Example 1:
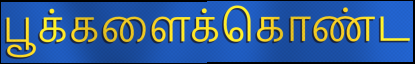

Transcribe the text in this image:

பூக்களைக்கொண்ட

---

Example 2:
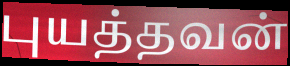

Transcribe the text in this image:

புயத்தவன்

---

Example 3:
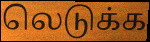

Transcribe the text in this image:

லெடுக்க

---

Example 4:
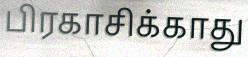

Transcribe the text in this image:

பிரகாசிக்காது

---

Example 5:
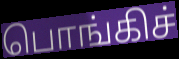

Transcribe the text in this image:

பொங்கிச்